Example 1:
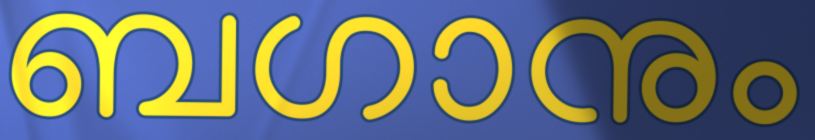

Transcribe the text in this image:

ബഗാനും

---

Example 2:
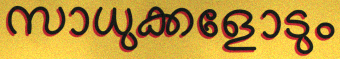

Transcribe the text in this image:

സാധുക്കളോടും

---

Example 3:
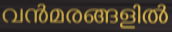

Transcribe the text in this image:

വൻമരങ്ങളിൽ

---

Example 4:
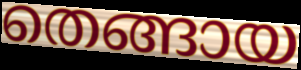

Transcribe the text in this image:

തെങ്ങായ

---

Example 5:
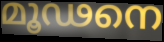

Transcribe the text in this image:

മൂഢനെ